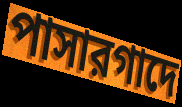
পাসারগাদে